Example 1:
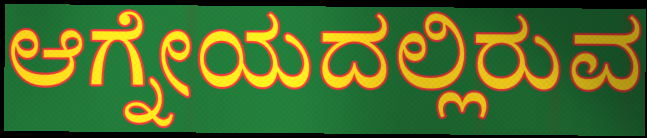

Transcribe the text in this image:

ಆಗ್ನೇಯದಲ್ಲಿರುವ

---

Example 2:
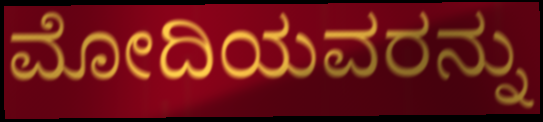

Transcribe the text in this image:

ಮೋದಿಯವರನ್ನು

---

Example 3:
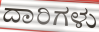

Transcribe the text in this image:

ದಾರಿಗಳು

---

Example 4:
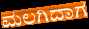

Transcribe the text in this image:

ಮಲಗಿದಾಗ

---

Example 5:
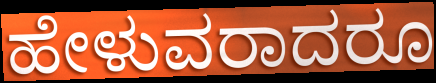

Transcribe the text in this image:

ಹೇಳುವರಾದರೂ